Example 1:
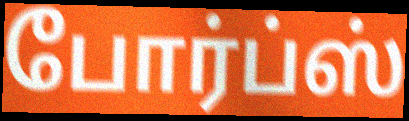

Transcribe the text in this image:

போர்ப்ஸ்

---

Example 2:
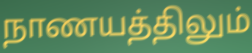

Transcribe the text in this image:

நாணயத்திலும்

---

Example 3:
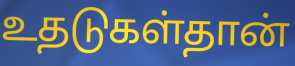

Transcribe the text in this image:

உதடுகள்தான்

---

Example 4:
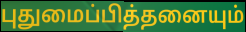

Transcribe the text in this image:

புதுமைப்பித்தனையும்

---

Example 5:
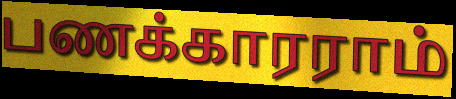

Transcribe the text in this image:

பணக்காரராம்